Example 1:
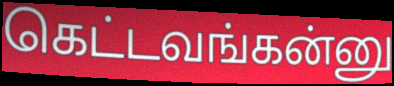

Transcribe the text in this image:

கெட்டவங்கன்னு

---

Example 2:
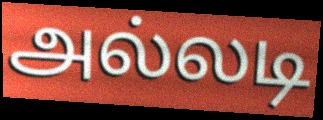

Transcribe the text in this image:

அல்லடி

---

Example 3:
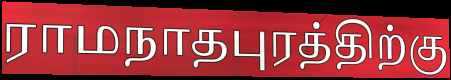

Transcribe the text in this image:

ராமநாதபுரத்திற்கு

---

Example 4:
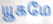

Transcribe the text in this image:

யூகமே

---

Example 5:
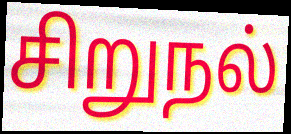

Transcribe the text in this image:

சிறுநல்